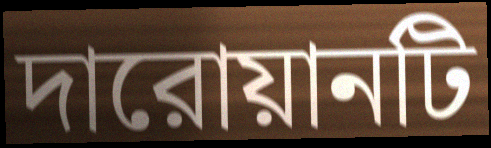
দারোয়ানটি